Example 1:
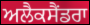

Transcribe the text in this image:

ਅਲੈਕਸੈਂਡਰਾ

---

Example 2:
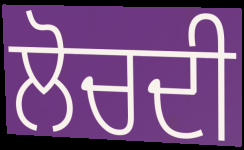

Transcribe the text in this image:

ਲੋਚਦੀ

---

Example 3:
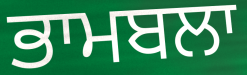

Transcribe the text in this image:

ਭਾਮਬਲਾ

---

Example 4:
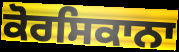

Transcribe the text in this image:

ਕੋਰਸਿਕਾਨਾ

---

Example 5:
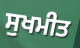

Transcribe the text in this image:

ਸੁਖਮੀਤ